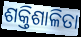
ଶକ୍ତିଶାଳିତା